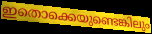
ഇതൊക്കെയുണ്ടെങ്കിലും